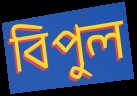
বিপুল